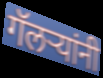
गॅलऱ्यांनी